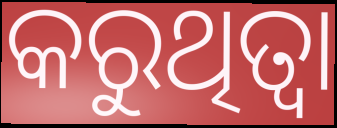
କରୁଥିତ୍ବା